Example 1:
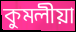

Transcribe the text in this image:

কুমলীয়া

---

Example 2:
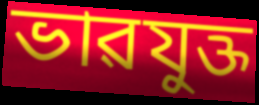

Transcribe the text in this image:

ভাৱযুক্ত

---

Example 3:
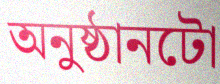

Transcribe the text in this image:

অনুষ্ঠানটো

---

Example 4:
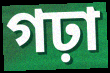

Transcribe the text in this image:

গঢ়া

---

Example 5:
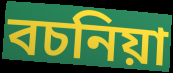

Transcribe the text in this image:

বচনিয়া